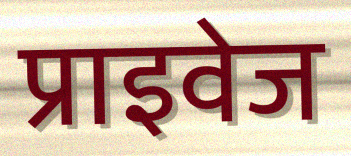
प्राइवेज